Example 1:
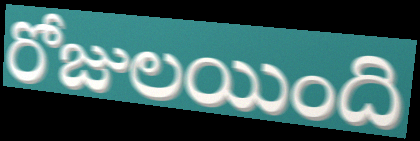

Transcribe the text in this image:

రోజులయింది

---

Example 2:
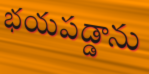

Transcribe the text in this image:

భయపడ్డాను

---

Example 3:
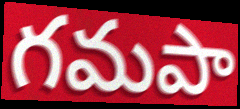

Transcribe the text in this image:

గమపా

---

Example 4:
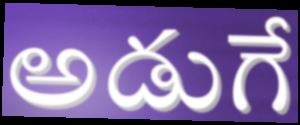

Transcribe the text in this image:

అడుగే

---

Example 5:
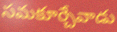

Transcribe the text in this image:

సమకూర్చేవాడు